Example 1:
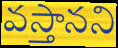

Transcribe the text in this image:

వస్తానని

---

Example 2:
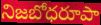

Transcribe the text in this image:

నిజబోధరూపా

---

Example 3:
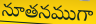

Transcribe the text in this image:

నూతనముగా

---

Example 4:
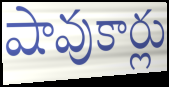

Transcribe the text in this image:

షావుకార్లు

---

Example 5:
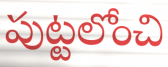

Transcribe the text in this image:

పుట్టలోంచి